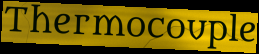
Thermocouple